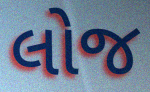
લોજ